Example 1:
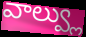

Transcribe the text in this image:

వాల్వ్లు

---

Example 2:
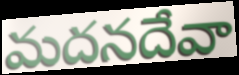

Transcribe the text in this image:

మదనదేవా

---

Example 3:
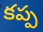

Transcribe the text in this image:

కప్ప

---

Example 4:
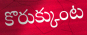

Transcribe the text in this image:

కొరుక్కుంట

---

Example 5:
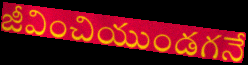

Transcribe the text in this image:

జీవించియుండగనే